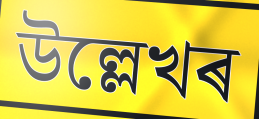
উল্লেখৰ